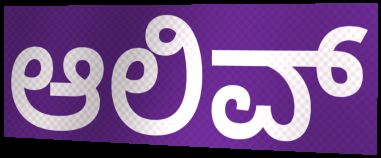
ಆಲಿವ್